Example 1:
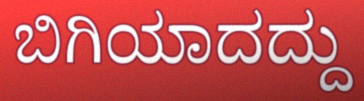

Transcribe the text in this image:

ಬಿಗಿಯಾದದ್ದು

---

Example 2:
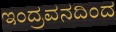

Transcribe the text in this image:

ಇಂದ್ರವನದಿಂದ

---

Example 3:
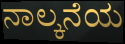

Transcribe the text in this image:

ನಾಲ್ಕನೆಯ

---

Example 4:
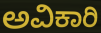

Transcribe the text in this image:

ಅವಿಕಾರಿ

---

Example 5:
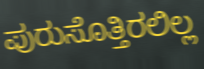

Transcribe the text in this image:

ಪುರುಸೊತ್ತಿರಲಿಲ್ಲ